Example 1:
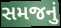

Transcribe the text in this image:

સમજનું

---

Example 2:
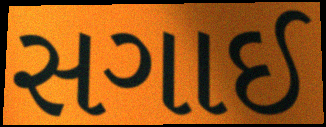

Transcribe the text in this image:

સગાઈ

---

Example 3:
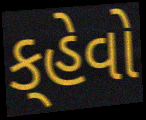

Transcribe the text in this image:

ક્‌હેવો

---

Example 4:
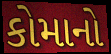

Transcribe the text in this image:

કોમાનો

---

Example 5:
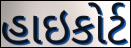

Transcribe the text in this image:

હાઇકોર્ટ